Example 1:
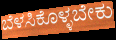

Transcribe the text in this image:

ಬೆಳಸಿಕೊಳ್ಳಬೇಕು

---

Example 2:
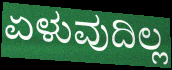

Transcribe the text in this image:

ಏಳುವುದಿಲ್ಲ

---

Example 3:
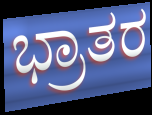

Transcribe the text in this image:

ಭ್ರಾತರ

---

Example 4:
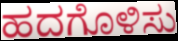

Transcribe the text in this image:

ಹದಗೊಳಿಸು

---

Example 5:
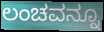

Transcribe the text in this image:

ಲಂಚವನ್ನೂ